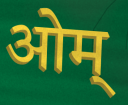
ओम्